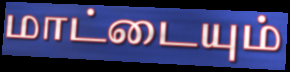
மாட்டையும்